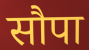
सौपा